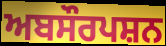
ਅਬਸੌਰਪਸ਼ਨ